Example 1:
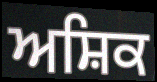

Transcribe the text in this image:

ਅਸ਼ਿਕ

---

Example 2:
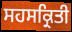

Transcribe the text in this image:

ਸਹਸਕ੍ਰਿਤੀ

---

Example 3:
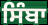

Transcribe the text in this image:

ਸਿੰਬਾ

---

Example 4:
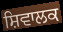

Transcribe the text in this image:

ਸ਼ਿਵਾਲਕ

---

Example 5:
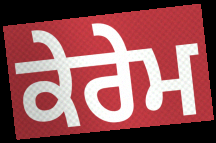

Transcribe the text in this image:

ਕੇਰੇਮ